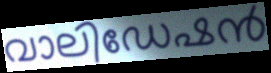
വാലിഡേഷൻ